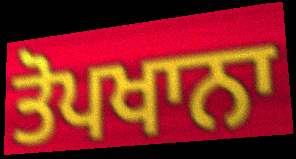
ਤੋਪਖਾਨਾ